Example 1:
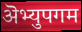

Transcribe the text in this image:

ऄभ्युपगम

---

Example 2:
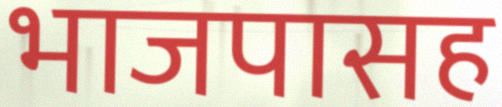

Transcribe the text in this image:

भाजपासह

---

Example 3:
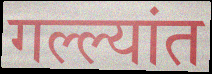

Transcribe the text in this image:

गल्ल्यांत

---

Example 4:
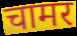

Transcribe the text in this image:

चामर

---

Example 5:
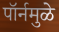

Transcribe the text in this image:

पॉर्नमुळे